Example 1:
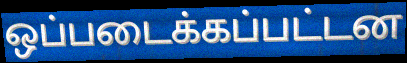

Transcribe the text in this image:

ஒப்படைக்கப்பட்டன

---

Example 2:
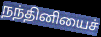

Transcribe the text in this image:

நந்தினியைச்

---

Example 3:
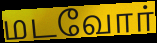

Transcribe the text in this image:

மடவோர்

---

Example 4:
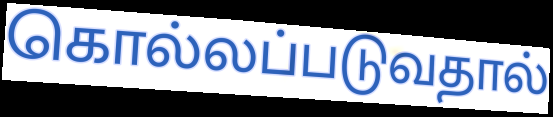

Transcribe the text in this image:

கொல்லப்படுவதால்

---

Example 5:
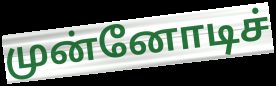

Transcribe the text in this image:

முன்னோடிச்